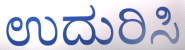
ಉದುರಿಸಿ